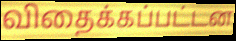
விதைக்கப்பட்டன